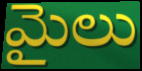
మైలు